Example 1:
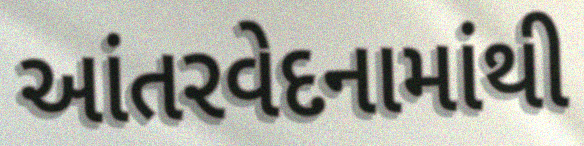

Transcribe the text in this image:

આંતરવેદનામાંથી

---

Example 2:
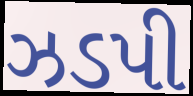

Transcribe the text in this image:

ઝડપી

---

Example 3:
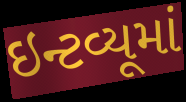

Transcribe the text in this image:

ઇન્ટવ્યૂમાં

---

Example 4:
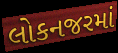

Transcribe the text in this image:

લોકનજરમાં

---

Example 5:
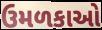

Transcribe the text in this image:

ઉમળકાઓ